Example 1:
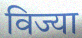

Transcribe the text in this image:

विज्या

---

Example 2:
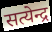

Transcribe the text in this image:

सत्येन्द्र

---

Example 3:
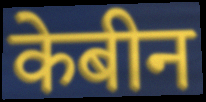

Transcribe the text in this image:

केबीन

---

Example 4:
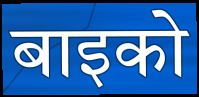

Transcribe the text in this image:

बाइको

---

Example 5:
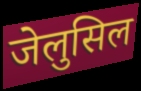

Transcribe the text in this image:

जेलुसिल